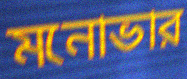
মনোভার